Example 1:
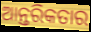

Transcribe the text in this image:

ଆନ୍ତରିକତାର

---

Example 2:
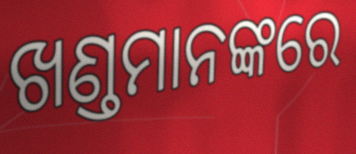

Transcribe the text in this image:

ଖଣ୍ଡମାନଙ୍କରେ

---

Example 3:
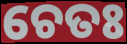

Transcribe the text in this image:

ଚେତଃ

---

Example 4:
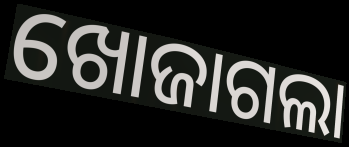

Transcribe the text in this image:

ଖୋଜାଗଲା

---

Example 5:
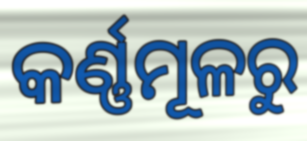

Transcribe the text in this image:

କର୍ଣ୍ଣମୂଳରୁ